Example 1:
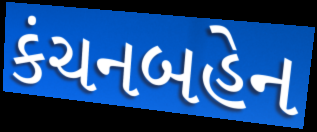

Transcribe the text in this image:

કંચનબહેન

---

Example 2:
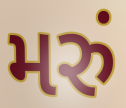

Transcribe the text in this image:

મરું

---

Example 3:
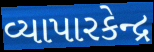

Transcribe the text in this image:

વ્યાપારકેન્દ્ર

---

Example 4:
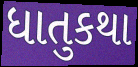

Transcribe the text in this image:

ધાતુકથા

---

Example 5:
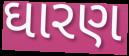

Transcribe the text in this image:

ઘારણ